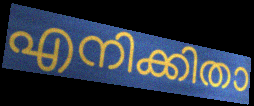
എനിക്കിതാ